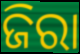
ଜିରା